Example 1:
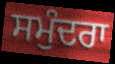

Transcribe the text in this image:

ਸਮੁੰਦਰਾ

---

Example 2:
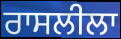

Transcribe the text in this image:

ਰਾਸਲੀਲਾ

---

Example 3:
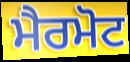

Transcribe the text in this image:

ਮੈਰਮੋਟ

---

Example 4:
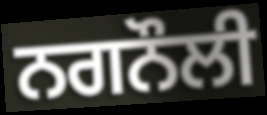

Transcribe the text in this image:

ਨਗਨੌਲੀ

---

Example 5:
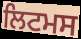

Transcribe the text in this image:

ਲਿਟਮਸ